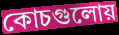
কোচগুলোয়